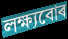
লক্ষ্যবোৰ